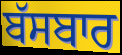
ਬੱਸਬਾਰ